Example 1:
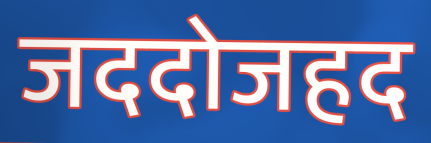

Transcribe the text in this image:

जददोजहद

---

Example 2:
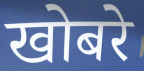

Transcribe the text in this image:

खोबरे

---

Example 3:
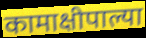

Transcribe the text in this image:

कामाक्षीपाल्या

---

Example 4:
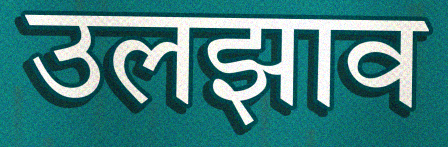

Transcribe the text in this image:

उलझाव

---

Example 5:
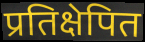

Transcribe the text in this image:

प्रतिक्षेपित